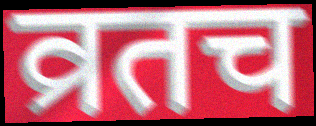
व्रतच